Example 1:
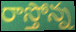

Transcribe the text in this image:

రాస్తోన్న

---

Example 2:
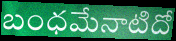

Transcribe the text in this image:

బంధమేనాటిదో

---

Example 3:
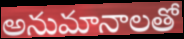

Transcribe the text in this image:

అనుమానాలతో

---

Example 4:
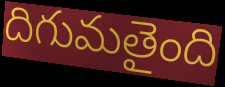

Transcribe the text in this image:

దిగుమతైంది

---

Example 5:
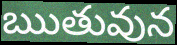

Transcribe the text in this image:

ఋతువున